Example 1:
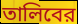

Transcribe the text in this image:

তালিবের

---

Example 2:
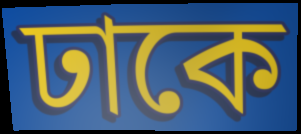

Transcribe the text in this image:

ঢাকে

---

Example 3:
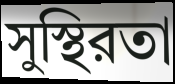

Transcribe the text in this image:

সুস্থিরতা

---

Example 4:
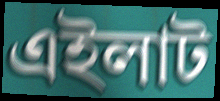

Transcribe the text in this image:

এইলাট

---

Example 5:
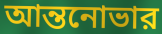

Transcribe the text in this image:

আন্তনোভার